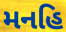
મનહિ